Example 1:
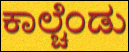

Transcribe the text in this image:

ಕಾಲ್ಚೆಂಡು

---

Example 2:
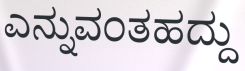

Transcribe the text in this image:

ಎನ್ನುವಂತಹದ್ದು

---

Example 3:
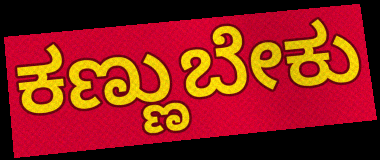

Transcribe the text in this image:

ಕಣ್ಣುಬೇಕು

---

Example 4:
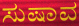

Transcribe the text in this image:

ಸುಷಾವ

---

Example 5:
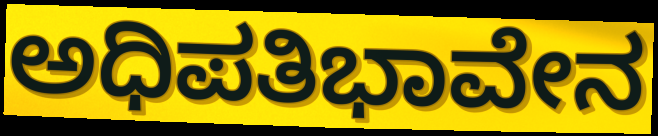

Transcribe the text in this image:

ಅಧಿಪತಿಭಾವೇನ